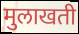
मुलाखती